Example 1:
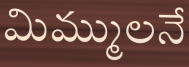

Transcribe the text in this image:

మిమ్ములనే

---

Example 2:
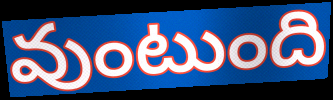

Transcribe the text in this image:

వుంటుంది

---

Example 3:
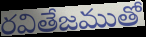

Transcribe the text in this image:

రవితేజముతో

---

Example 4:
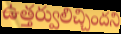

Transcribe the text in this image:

ఉత్తర్వులిచ్చిందని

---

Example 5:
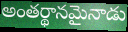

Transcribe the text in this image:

అంతర్థానమైనాడు